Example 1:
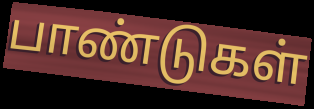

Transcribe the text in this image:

பாண்டுகள்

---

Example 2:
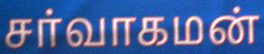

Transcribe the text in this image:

சர்வாகமன்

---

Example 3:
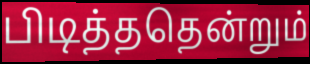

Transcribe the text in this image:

பிடித்ததென்றும்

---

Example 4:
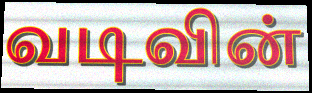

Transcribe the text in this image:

வடிவின்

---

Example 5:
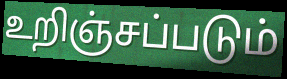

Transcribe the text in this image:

உறிஞ்சப்படும்